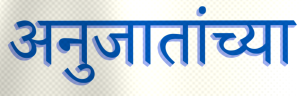
अनुजातांच्या